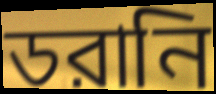
ডরানি